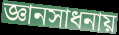
জ্ঞানসাধনায়